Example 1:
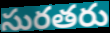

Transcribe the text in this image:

సురతరు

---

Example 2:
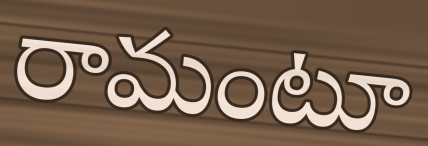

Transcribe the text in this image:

రామంటూ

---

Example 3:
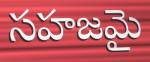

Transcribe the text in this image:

సహజమై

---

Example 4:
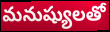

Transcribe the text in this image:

మనుష్యులతో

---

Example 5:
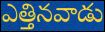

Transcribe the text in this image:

ఎత్తినవాడు